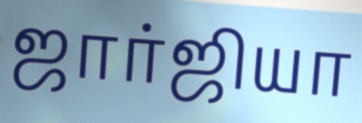
ஜார்ஜியா